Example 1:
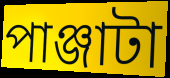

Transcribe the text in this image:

পাঞ্জাটা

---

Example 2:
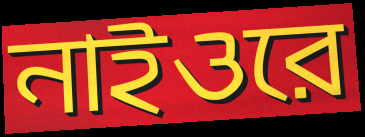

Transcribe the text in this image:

নাইওরে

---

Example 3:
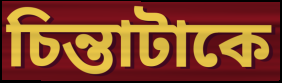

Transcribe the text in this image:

চিন্তাটাকে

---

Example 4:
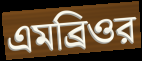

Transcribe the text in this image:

এমব্রিওর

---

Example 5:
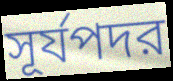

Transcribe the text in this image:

সূর্যপদর